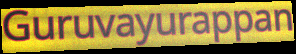
Guruvayurappan